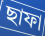
ছাফা